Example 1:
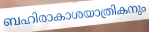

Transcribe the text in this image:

ബഹിരാകാശയാത്രികനും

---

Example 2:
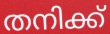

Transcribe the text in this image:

തനിക്ക്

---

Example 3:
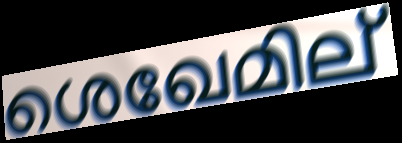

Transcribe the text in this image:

ശെഖേമില്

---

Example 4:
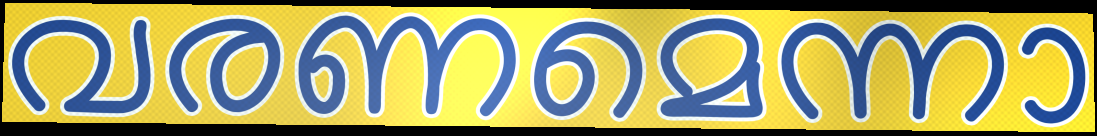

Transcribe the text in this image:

വരണമെന്നാ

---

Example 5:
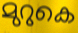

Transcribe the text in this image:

മുറുകെ